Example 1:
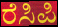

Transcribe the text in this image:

ರೆಸಿಪಿ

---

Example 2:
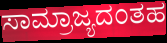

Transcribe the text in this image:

ಸಾಮ್ರಾಜ್ಯದಂತಹ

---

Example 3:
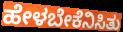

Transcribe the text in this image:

ಹೇಳಬೇಕೆನಿಸಿತು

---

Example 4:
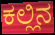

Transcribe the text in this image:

ಕಲ್ಲಿನ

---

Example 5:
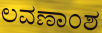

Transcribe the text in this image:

ಲವಣಾಂಶ